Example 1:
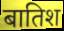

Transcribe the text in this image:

बातिश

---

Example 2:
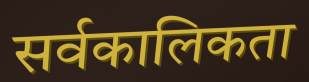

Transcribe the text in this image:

सर्वकालिकता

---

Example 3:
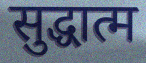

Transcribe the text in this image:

सुद्धात्म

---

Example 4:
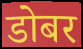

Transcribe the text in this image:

डोबर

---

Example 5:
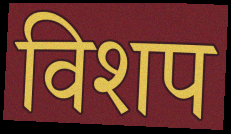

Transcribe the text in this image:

विशप